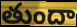
తుందా